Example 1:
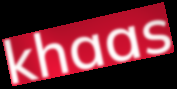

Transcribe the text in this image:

khaas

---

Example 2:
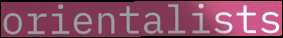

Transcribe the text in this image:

orientalists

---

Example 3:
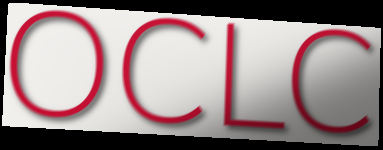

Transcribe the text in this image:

OCLC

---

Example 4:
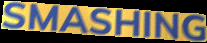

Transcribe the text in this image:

SMASHING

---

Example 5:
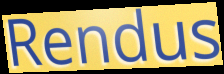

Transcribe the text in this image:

Rendus